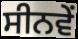
ਸੀਨਵੇਂ